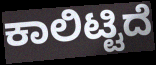
ಕಾಲಿಟ್ಟಿದೆ